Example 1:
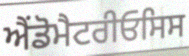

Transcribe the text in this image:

ਐਂਡੋਮੈਟਰੀਓਸਿਸ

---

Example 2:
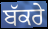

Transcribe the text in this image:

ਬੱਕਰੇ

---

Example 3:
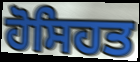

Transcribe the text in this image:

ਹੋਸਿਹਤ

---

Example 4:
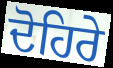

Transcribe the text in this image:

ਦੋਹਿਰੇ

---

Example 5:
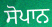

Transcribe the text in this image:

ਸੋਪਾਨ